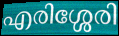
എരിശ്ശേരി